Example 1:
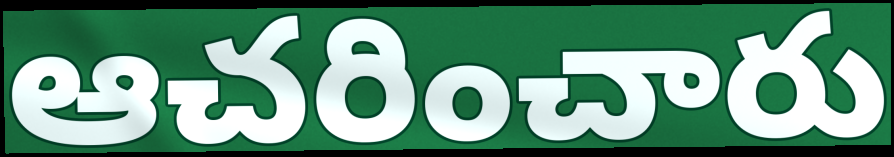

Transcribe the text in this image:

ఆచరించారు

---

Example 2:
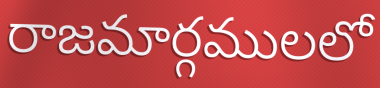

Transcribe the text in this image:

రాజమార్గములలో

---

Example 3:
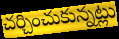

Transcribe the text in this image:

చర్చించుకున్నట్లు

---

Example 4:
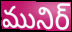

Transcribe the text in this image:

మునిర్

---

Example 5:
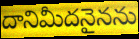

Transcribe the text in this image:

దానిమీదనైనను